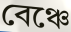
বেঞ্চে